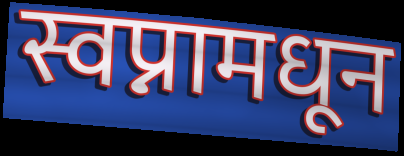
स्वप्नामधून